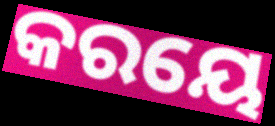
କରୟେ